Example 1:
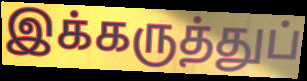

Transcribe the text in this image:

இக்கருத்துப்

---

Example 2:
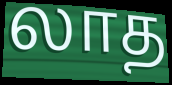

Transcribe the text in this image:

லாத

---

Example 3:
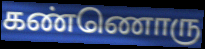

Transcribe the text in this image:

கண்ணொரு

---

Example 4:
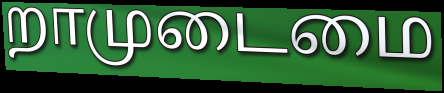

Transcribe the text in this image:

றாமுடைமை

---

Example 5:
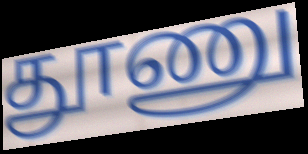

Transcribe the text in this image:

தூணு